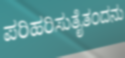
ಪರಿಹರಿಸುತೈತಂದನು